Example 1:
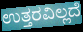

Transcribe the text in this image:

ಉತ್ತರವಿಲ್ಲದೆ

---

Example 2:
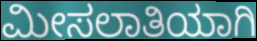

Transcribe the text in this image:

ಮೀಸಲಾತಿಯಾಗಿ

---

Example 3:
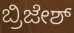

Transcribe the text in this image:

ಬ್ರಿಜೇಶ್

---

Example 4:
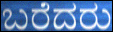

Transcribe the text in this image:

ಬರೆದರು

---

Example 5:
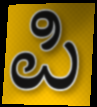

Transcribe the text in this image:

ಪಿ